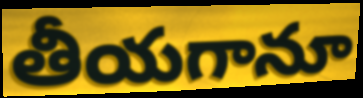
తీయగానూ